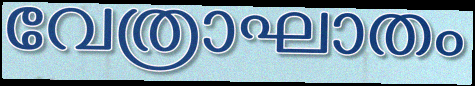
വേത്രാഘാതം